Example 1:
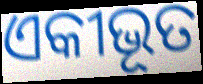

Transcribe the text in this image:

ଏକୀଭୂତ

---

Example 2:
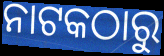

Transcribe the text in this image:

ନାଟକଠାରୁ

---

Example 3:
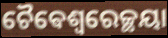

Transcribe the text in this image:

ଚୈଵେଶ୍ଵରେଚ୍ଛୟା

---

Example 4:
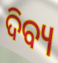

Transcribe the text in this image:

ଦିବ୍ୟ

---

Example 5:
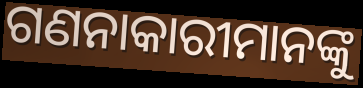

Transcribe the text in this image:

ଗଣନାକାରୀମାନଙ୍କୁ